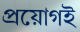
প্রয়োগই